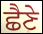
ਛੈਣੇ